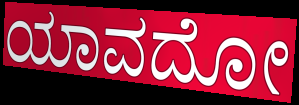
ಯಾವದೋ